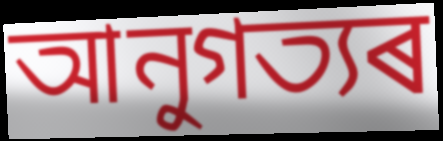
আনুগত্যৰ